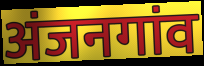
अंजनगांव